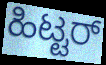
ಹಿಟ್ಟರ್